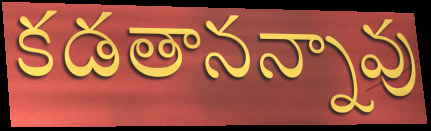
కడతానన్నావు